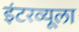
इंटरव्यूला